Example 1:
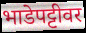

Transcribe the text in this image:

भाडेपट्टीवर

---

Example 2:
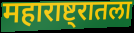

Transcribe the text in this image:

महाराष्ट्रातला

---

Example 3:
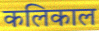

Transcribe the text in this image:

कलिकाल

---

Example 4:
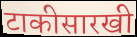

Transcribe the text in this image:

टाकीसारखी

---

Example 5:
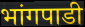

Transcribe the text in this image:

भांगपाडी